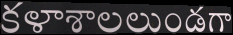
కళాశాలలుండగా